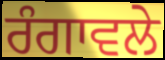
ਰੰਗਾਵਲੇ